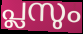
പ്ലസും